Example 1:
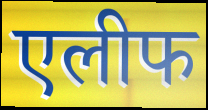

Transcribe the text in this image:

एलीफ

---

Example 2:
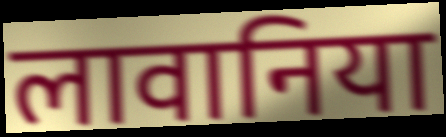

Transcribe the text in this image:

लावानिया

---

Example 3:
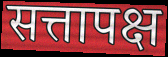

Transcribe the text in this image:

सत्तापक्ष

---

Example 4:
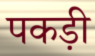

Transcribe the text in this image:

पकड़ी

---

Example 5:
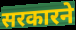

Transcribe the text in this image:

सरकारने